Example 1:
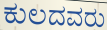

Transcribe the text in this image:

ಕುಲದವರು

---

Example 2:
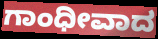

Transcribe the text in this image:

ಗಾಂಧೀವಾದ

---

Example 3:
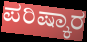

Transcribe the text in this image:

ಪರಿಷ್ಕಾರ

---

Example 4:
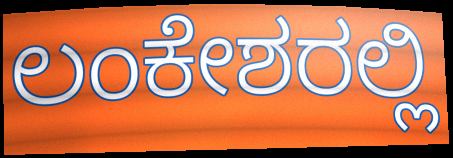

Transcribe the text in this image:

ಲಂಕೇಶರಲ್ಲಿ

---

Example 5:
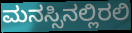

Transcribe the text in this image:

ಮನಸ್ಸಿನಲ್ಲಿರಲಿ